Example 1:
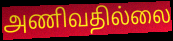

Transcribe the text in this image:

அணிவதில்லை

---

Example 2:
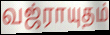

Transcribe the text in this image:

வஜ்ராயுதம்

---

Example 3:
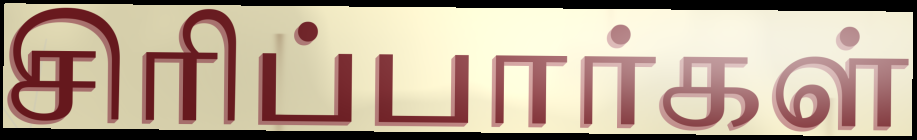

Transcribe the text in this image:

சிரிப்பார்கள்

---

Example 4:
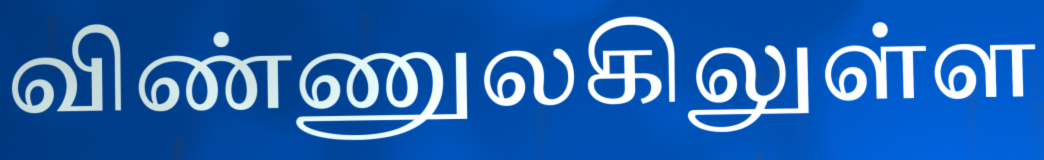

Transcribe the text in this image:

விண்ணுலகிலுள்ள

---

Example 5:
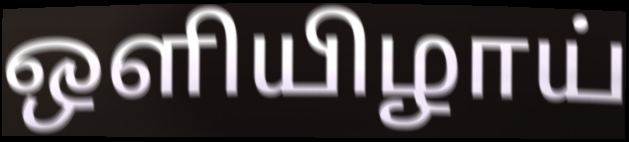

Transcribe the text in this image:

ஒளியிழாய்